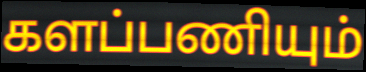
களப்பணியும்